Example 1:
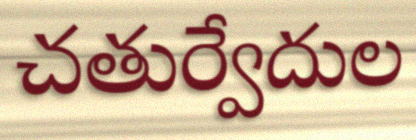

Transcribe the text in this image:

చతుర్వేదుల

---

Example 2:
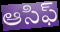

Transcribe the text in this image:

ఆసిఫ్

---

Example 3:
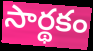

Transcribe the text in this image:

సార్థకం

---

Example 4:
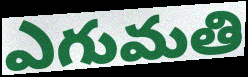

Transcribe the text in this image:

ఎగుమతి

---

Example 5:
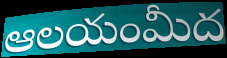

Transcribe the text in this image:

ఆలయంమీద